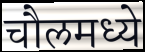
चौलमध्ये